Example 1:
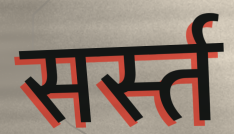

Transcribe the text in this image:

सर्स्त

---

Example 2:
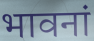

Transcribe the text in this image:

भावनां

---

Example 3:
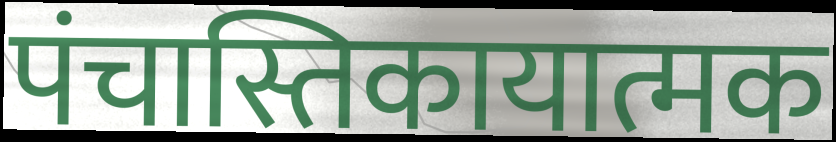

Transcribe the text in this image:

पंचास्तिकायात्मक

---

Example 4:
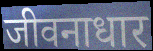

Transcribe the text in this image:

जीवनाधार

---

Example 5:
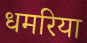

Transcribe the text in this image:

धमरिया